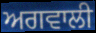
ਅਗਵਾਲੀ